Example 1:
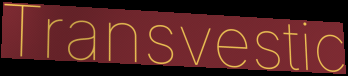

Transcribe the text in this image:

Transvestic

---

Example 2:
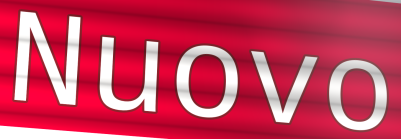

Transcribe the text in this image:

Nuovo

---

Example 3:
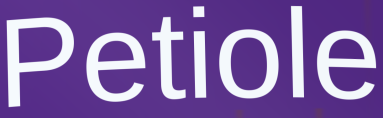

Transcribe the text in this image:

Petiole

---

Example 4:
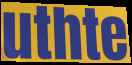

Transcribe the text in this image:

uthte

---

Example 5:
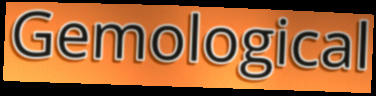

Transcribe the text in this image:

Gemological